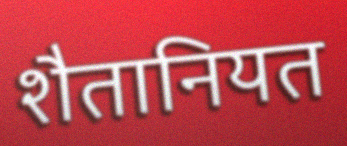
शैतानियत